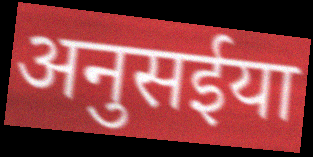
अनुसईया